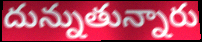
దున్నుతున్నారు